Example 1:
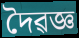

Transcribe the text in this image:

দৈৱজ্ঞ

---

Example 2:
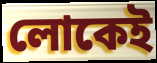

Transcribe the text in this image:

লোকেই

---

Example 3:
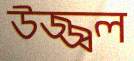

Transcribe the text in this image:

উজ্জ্বল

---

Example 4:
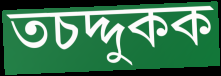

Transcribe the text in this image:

তচদ্দুকক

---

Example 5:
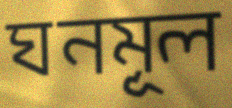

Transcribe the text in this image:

ঘনমূল